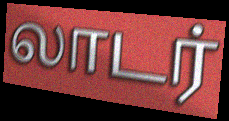
லாடர்